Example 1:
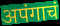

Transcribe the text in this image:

अपंगाचं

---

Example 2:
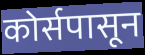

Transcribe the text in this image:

कोर्सपासून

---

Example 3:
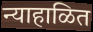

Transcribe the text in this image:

न्याहाळित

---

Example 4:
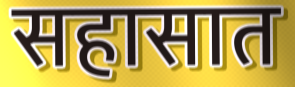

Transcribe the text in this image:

सहासात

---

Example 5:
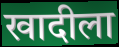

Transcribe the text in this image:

खादीला